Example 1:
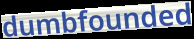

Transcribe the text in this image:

dumbfounded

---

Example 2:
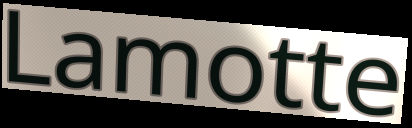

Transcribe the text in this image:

Lamotte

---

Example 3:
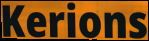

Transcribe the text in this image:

Kerions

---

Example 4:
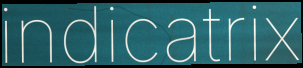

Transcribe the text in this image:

indicatrix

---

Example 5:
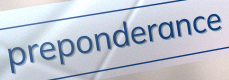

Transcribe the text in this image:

preponderance